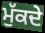
ਮੁੱਕਦੇ